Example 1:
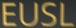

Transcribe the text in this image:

EUSL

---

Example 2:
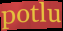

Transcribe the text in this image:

potlu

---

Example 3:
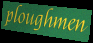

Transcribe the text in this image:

ploughmen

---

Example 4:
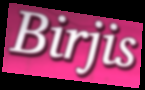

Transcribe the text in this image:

Birjis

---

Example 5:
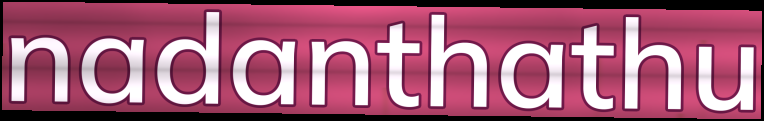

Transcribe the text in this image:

nadanthathu